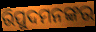
ରିପୁଦମନଙ୍କର